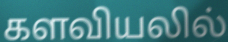
களவியலில்